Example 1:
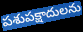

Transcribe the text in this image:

పశుపక్షాదులను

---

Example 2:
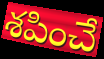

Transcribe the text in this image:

శపించే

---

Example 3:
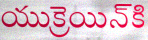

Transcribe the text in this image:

యుక్రెయిన్‌కి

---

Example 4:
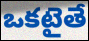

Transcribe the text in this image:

ఒకటైతే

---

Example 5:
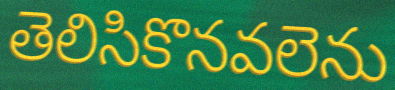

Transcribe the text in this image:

తెలిసికొనవలెను